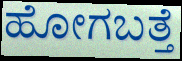
ಹೋಗಬತ್ತೆ